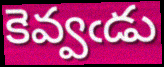
కెవ్వఁడు